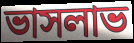
ভাসলাভ